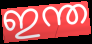
ഇന്ത